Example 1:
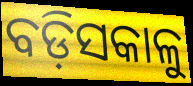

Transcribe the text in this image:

ବଡ଼ିସକାଳୁ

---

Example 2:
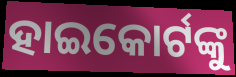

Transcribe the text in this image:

ହାଇକୋର୍ଟଙ୍କୁ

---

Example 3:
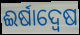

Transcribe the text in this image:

ଈର୍ଷାଦ୍ଵେଷ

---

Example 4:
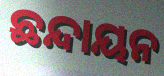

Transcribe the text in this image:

ଛନ୍ଦାୟନ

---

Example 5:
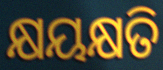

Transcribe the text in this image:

କ୍ଷୟକ୍ଷତି